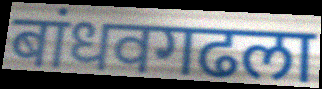
बांधवगढला